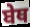
ਬੇਥ